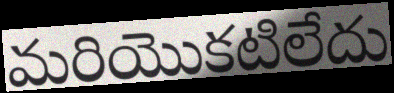
మరియొకటిలేదు